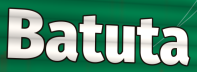
Batuta